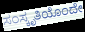
ಸಂಸ್ಕೃತಿಯೊಂದೇ